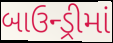
બાઉન્ડ્રીમાં